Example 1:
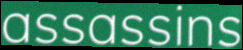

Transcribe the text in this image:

assassins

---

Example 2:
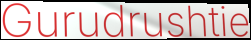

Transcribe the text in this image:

Gurudrushtie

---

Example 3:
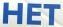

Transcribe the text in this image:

HET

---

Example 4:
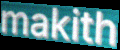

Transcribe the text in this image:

makith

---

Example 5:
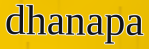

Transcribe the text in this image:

dhanapa